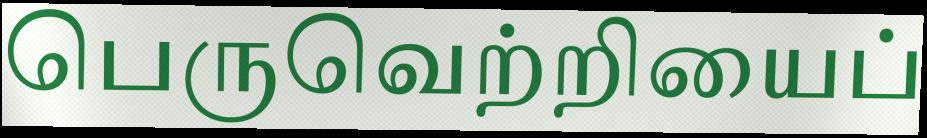
பெருவெற்றியைப்